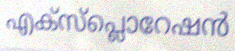
എക്സ്പ്ലൊറേഷൻ